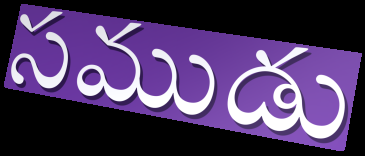
సముడు